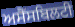
ਅਸੈੱਸਬਿਲਟੀ